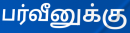
பர்வீனுக்கு